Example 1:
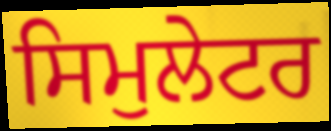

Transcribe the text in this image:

ਸਿਮੁਲੇਟਰ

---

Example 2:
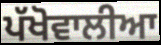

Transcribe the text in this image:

ਪੱਖੋਵਾਲੀਆ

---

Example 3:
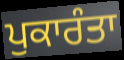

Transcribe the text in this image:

ਪੁਕਾਰੰਤਾ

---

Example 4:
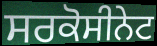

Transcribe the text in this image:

ਸਰਕੋਸੀਨੇਟ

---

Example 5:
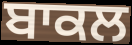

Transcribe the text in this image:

ਬਾਕਲ